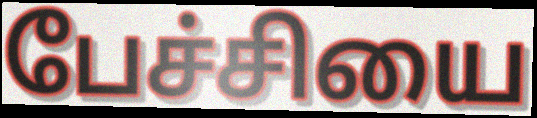
பேச்சியை